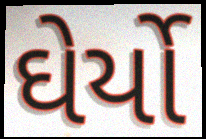
ઘેર્યો